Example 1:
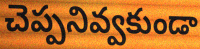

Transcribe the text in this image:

చెప్పనివ్వకుండా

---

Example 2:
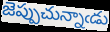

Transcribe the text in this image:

జెప్పుచున్నాఁడు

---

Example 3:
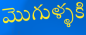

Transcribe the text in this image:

మొగుళ్ళకి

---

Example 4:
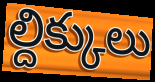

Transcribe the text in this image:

ల్దిక్కులు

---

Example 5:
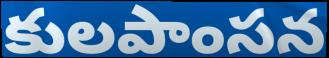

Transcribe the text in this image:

కులపాంసన